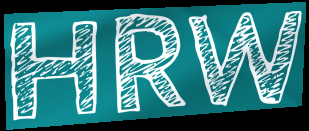
HRW